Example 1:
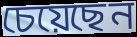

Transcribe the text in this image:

চেয়েছেন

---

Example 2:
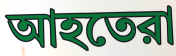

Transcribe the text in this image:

আহতেরা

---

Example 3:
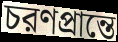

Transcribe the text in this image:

চরণপ্রান্তে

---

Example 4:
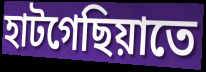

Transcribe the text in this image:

হাটগেছিয়াতে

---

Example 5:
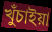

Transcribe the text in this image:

খুঁচাইয়া